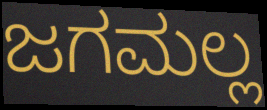
ಜಗಮಲ್ಲ